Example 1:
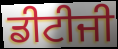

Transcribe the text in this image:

ਡੀਟੀਜੀ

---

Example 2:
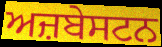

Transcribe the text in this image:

ਅਜ਼ਬੇਸਟਨ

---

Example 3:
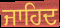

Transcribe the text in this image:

ਜਾਹਿਦ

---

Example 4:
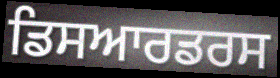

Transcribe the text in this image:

ਡਿਸਆਰਡਰਸ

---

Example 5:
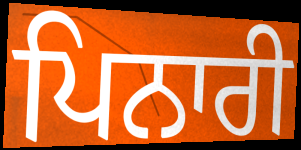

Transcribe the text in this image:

ਪਿਨਾਰੀ